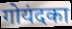
गोयंदका